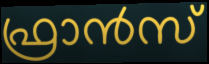
ഫ്രാൻസ്